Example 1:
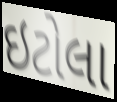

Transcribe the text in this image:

ઇટોલા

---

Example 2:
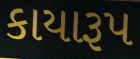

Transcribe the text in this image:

કાયારૂપ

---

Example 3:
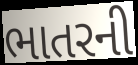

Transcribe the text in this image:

ભાતરની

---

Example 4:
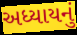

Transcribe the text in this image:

અધ્યાયનું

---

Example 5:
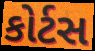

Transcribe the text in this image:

કોર્ટસ